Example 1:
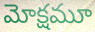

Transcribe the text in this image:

మోక్షమూ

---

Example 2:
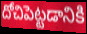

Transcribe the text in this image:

దోచిపెట్టడానికి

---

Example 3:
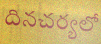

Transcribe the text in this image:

దినచర్యలో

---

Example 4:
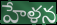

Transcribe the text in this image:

హేళన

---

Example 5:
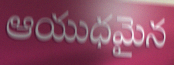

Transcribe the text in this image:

ఆయుధమైన